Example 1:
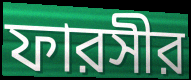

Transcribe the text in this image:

ফারসীর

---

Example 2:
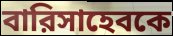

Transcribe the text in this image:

বারিসাহেবকে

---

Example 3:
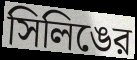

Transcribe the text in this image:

সিলিঙের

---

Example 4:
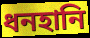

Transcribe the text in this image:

ধনহানি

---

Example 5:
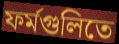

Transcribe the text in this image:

ফর্মগুলিতে